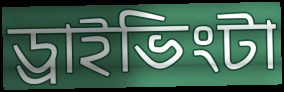
ড্রাইভিংটা